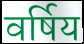
वर्षिय